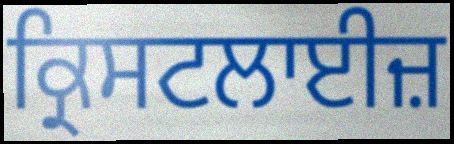
ਕ੍ਰਿਸਟਲਾਈਜ਼